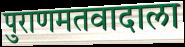
पुराणमतवादाला